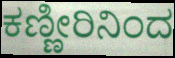
ಕಣ್ಣೀರಿನಿಂದ